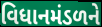
વિધાનમંડળને